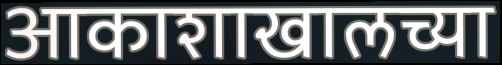
आकाशाखालच्या